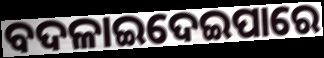
ବଦଳାଇଦେଇପାରେ